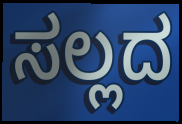
ಸಲ್ಲದ